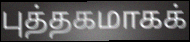
புத்தகமாகக்